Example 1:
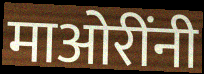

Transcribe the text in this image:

माओरींनी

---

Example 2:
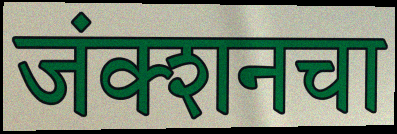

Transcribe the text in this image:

जंक्शनचा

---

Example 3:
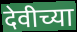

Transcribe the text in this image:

देवीच्या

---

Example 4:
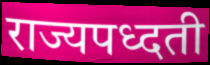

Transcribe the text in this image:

राज्यपध्दती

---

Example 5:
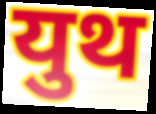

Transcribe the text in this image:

युथ